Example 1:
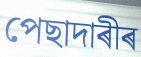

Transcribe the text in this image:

পেছাদাৰীৰ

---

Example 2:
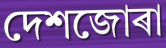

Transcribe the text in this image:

দেশজোৰা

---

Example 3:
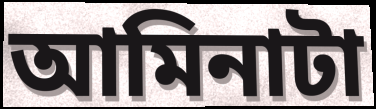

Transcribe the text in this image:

আমিনাটা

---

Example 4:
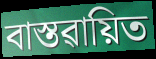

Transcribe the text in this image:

বাস্তৱায়িত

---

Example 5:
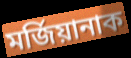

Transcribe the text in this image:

মৰ্জিয়ানাক